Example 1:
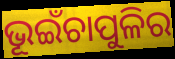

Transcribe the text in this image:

ଭୂଇଁଚାପୁଳିର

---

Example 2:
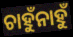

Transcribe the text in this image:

ଚାହୁଁନାହୁଁ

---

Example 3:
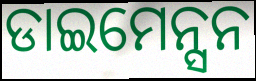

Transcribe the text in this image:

ଡାଇମେନ୍ସନ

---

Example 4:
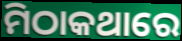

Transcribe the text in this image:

ମିଠାକଥାରେ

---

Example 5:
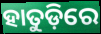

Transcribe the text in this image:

ହାତୁଡ଼ିରେ